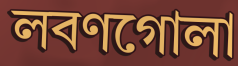
লবণগোলা